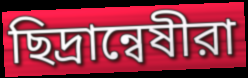
ছিদ্রান্বেষীরা